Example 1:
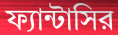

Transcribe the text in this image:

ফ্যান্টাসির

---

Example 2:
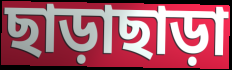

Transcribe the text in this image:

ছাড়াছাড়া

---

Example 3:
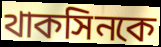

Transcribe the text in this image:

থাকসিনকে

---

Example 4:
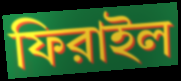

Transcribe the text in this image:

ফিরাইল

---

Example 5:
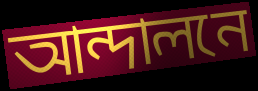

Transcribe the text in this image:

আন্দালনে